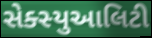
સેક્સ્યુઆલિટી